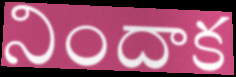
నిందాక